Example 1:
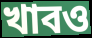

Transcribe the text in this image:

খাবও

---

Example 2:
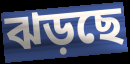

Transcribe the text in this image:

ঝড়ছে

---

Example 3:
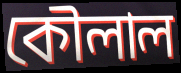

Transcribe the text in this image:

কৌলাল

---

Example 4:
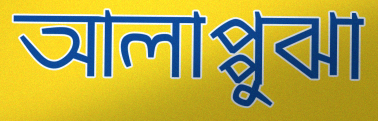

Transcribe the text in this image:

আলাপ্পুঝা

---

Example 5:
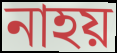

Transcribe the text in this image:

নাহয়